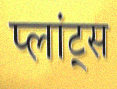
प्लांट्स